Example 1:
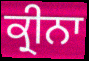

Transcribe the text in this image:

ਕ੍ਰੀਨਾ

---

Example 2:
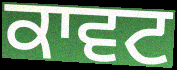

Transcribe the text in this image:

ਕਾਵਟ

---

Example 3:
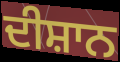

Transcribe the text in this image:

ਦੀਸ਼ਾਨ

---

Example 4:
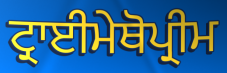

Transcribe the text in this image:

ਟ੍ਰਾਈਮੇਥੋਪ੍ਰੀਮ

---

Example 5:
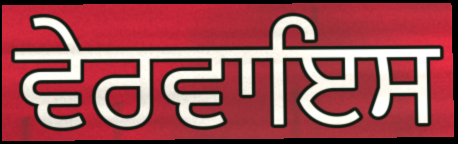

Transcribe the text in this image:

ਵੇਰਵਾਇਸ